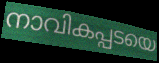
നാവികപ്പടയെ